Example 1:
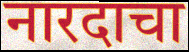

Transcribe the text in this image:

नारदाचा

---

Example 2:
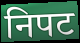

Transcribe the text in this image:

निपट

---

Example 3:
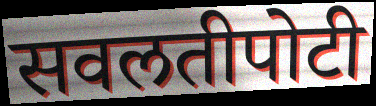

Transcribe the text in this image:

सवलतीपोटी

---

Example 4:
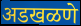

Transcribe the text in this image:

अडखळणे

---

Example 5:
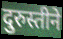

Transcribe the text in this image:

दुरुस्तीने